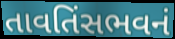
તાવતિંસભવનં